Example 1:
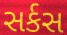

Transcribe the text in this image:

સર્કસ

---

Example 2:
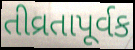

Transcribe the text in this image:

તીવ્રતાપૂર્વક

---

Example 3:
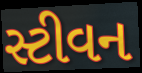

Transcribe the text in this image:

સ્ટીવન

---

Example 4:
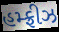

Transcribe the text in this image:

હમ્ફ્રીઝ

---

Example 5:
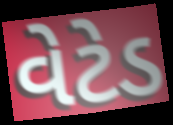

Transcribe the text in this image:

વેટેડ